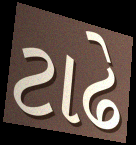
ટાઢે